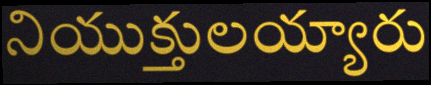
నియుక్తులయ్యారు